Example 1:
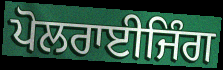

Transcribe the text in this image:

ਪੋਲਰਾਈਜਿੰਗ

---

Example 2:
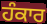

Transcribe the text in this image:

ਹੰਕਾਰ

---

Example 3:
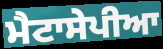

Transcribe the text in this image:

ਮੈਟਾਸੇਪੀਆ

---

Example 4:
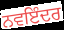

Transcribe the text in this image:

ਨਵਇੰਦਰ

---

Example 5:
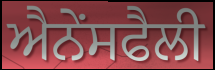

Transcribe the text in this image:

ਐਨੇਂਸਫੈਲੀ